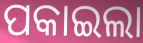
ପକାଇଲା